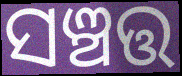
ସଞ୍ଚତ୍ତ